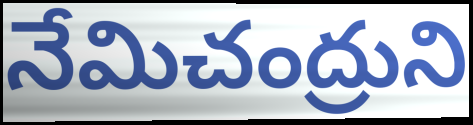
నేమిచంద్రుని